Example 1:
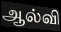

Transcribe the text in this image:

ஆல்வி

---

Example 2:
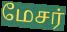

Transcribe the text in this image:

மேசர்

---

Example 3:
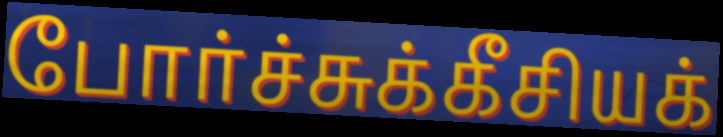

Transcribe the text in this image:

போர்ச்சுக்கீசியக்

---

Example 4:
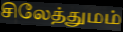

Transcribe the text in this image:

சிலேத்துமம்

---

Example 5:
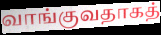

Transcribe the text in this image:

வாங்குவதாகத்